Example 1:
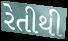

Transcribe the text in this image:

રેતીથી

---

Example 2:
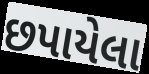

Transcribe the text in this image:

છપાયેલા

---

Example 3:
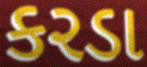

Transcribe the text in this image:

કરડા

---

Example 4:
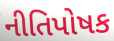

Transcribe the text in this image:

નીતિપોષક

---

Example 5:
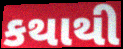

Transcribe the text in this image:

કથાથી